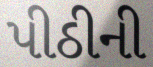
પીઠીની